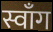
स्वाँग